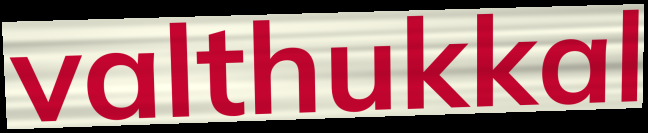
valthukkal